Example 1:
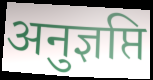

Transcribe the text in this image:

अनुज्ञप्ति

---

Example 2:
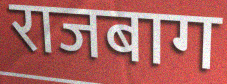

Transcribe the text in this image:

राजबाग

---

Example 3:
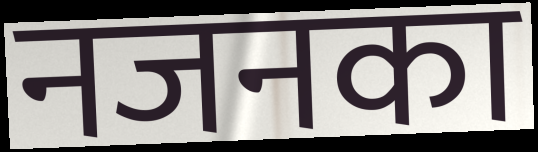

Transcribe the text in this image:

नजनका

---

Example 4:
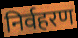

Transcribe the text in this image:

निर्वहरण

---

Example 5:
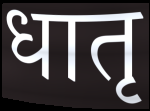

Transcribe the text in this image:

धातृ